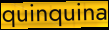
quinquina